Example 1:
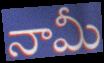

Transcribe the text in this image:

నామీ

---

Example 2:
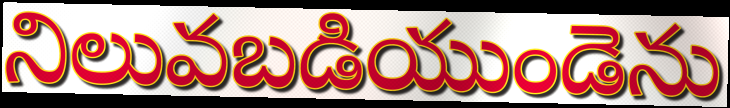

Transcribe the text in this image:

నిలువబడియుండెను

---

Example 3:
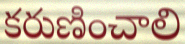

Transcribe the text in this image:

కరుణించాలి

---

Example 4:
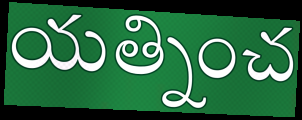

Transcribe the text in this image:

యత్నించ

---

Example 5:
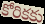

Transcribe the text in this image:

కోరికకు